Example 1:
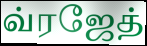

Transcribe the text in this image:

வ்ரஜேத்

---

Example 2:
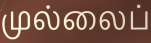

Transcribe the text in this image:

முல்லைப்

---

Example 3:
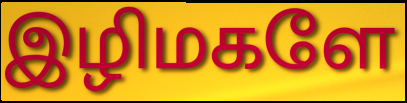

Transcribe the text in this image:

இழிமகளே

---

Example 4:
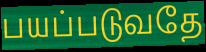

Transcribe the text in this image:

பயப்படுவதே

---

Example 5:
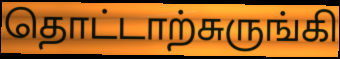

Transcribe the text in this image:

தொட்டாற்சுருங்கி